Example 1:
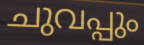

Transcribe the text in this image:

ചുവപ്പും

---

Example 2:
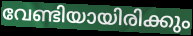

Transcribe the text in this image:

വേണ്ടിയായിരിക്കും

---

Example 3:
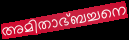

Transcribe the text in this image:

അമിതാഭ്ബച്ചനെ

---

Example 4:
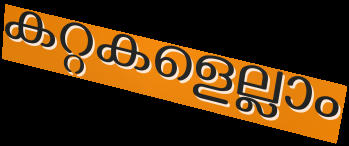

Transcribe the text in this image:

കറ്റകളെല്ലാം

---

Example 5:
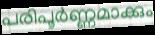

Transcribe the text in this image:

പരിപൂർണ്ണമാക്കും